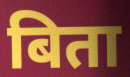
बिता